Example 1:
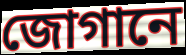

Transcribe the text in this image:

জোগানে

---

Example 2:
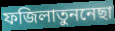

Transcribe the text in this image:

ফজিলাতুননেছা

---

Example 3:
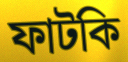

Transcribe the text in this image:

ফাটকি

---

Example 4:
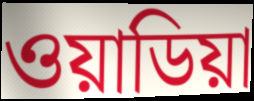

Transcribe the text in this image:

ওয়াডিয়া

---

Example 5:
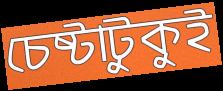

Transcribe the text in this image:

চেষ্টাটুকুই